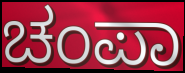
ಚಂಪಾ